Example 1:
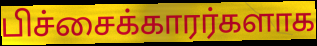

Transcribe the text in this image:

பிச்சைக்காரர்களாக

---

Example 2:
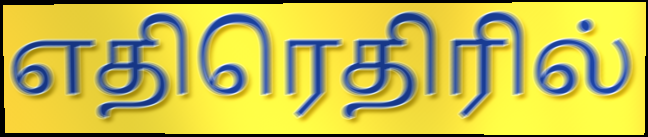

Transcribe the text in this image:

எதிரெதிரில்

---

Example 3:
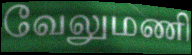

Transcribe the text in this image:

வேலுமணி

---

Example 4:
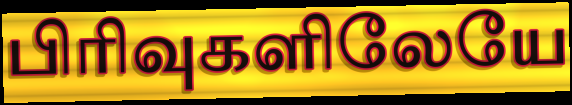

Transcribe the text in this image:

பிரிவுகளிலேயே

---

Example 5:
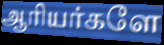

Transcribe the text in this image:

ஆரியர்களே